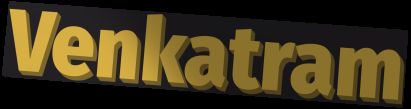
Venkatram